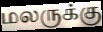
மலருக்கு